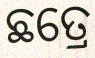
ଛତ୍ରେ